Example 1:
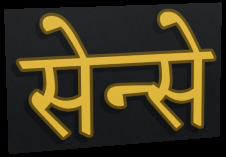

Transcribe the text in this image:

सेन्से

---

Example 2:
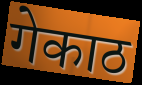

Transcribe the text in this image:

गेकाठ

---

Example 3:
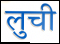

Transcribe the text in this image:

लुची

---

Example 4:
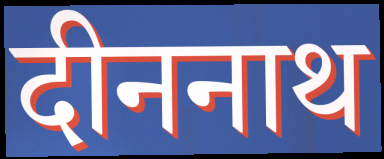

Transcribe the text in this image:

दीननाथ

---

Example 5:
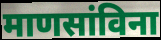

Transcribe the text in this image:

माणसांविना